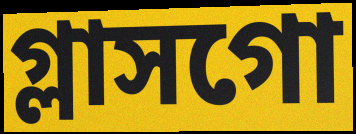
গ্লাসগো